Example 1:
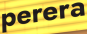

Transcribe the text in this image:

perera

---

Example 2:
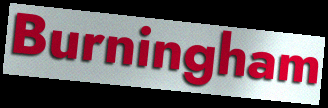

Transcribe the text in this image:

Burningham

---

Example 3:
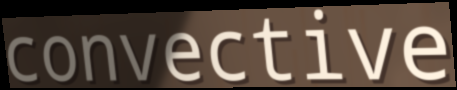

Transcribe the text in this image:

convective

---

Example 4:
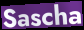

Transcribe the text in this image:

Sascha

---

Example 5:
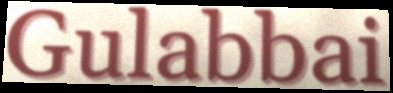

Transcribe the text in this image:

Gulabbai